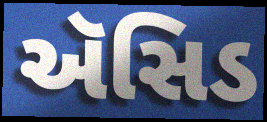
ઍસિડ